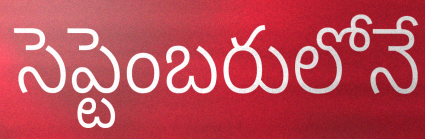
సెప్టెంబరులోనే